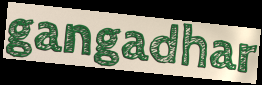
gangadhar